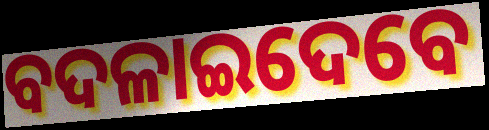
ବଦଳାଇଦେବେ